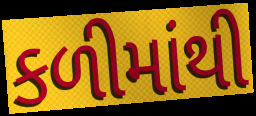
કળીમાંથી